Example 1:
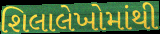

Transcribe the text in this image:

શિલાલેખોમાંથી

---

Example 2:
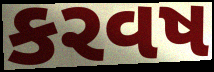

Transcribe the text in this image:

કરવષ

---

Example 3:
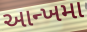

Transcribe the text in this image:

આન્ખમા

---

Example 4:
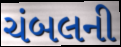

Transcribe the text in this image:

ચંબલની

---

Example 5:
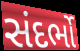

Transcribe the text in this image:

સંદર્ભો